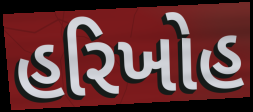
હરિખોહ